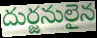
దుర్జనులైన